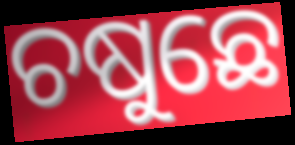
ଚଷୁଛେ